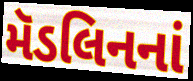
મૅડલિનનાં